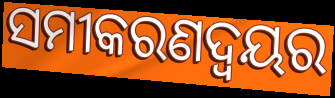
ସମୀକରଣଦ୍ଵୟର